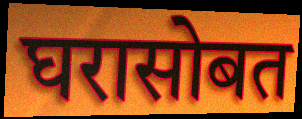
घरासोबत